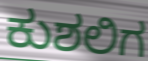
ಕುಶಲಿಗ